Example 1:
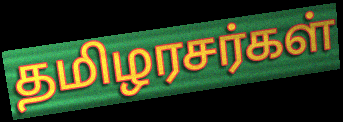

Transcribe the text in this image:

தமிழரசர்கள்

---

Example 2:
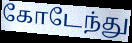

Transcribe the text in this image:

கோடேந்து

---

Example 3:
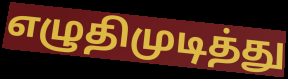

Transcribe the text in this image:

எழுதிமுடித்து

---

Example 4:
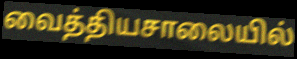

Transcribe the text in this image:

வைத்தியசாலையில்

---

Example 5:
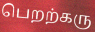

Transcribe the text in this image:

பெறற்கரு